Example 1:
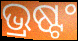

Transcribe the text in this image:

ଭ୍ରଷ୍ଟଂ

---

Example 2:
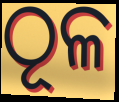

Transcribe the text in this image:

ଠୂଳ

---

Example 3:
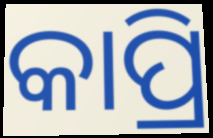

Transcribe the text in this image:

କାପ୍ରି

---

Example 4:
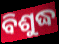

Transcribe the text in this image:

ବିଶୁଦ୍ଧ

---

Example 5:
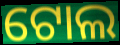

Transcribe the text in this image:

ଟୋଲ